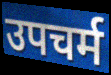
उपचर्म